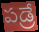
పడ్రే